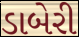
ડાબેરી